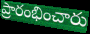
ప్రారంభించారు